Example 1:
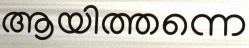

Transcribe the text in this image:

ആയിത്തന്നെ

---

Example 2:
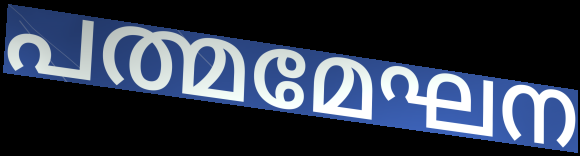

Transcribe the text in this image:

പത്മമേഘന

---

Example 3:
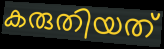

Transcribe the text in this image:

കരുതിയത്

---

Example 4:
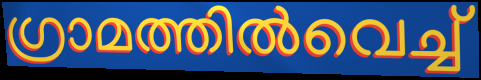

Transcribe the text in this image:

ഗ്രാമത്തിൽവെച്ച്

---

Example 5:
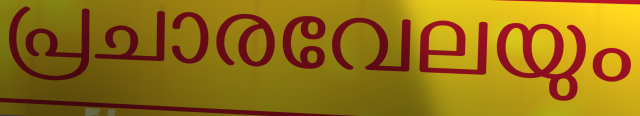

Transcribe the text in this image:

പ്രചാരവേലയും